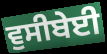
ਵੁਸੀਬੇਈ